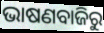
ଭାଷଣବାଜିରୁ